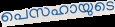
പെസഹായുടെ